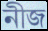
নীজ